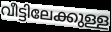
വീട്ടിലേക്കുള്ള